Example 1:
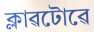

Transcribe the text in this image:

ক্লাৱটোৱে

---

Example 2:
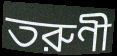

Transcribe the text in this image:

তৰুণী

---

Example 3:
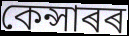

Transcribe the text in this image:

কেন্সাৰৰ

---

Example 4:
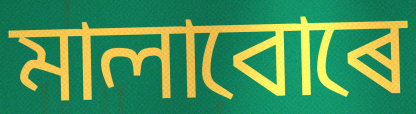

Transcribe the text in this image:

মালাবোৰে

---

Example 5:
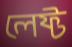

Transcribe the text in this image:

লেফ্ট